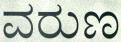
ವರುಣ